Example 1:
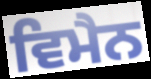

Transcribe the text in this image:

ਵਿਮੈਨ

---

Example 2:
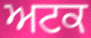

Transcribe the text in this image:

ਅਟਕ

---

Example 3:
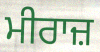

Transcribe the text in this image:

ਮੀਰਾਜ਼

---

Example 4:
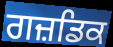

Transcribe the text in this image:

ਗਜ਼ਡਿਕ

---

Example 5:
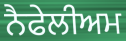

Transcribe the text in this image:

ਨੈਫੇਲੀਅਮ